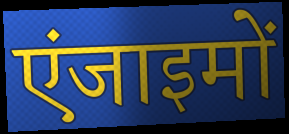
एंजाइमों